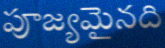
పూజ్యమైనది